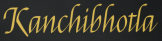
Kanchibhotla